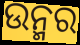
ଉନ୍ମର